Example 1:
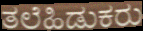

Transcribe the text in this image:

ತಲೆಹಿಡುಕರು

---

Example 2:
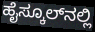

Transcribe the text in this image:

ಹೈಸ್ಕೂಲ್‌ನಲ್ಲಿ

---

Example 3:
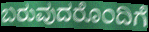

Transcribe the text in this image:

ಬರುವುದರೊಂದಿಗೆ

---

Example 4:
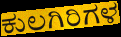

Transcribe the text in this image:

ಕುಲಗಿರಿಗಳ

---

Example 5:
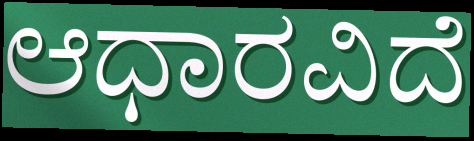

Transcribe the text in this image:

ಆಧಾರವಿದೆ